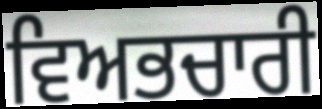
ਵਿਅਭਚਾਰੀ